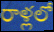
రాళ్లలో